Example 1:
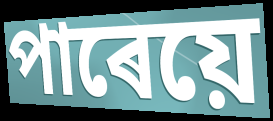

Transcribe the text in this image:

পাৰেয়ে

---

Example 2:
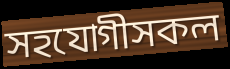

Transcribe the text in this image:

সহযোগীসকল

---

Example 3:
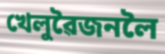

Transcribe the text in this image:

খেলুৱৈজনলৈ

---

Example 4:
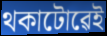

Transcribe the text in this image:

থকাটোৱেই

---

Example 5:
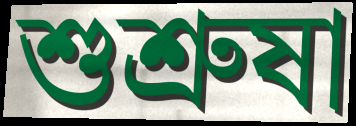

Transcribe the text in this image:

শুশ্ৰুষা